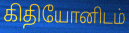
கிதியோனிடம்